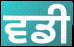
ਵਡੀ